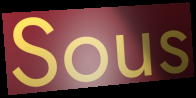
Sous